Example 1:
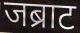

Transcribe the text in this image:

जब्राट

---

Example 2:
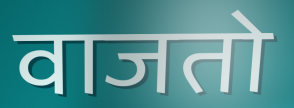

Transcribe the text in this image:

वाजतो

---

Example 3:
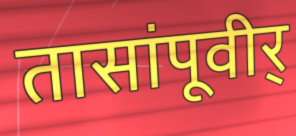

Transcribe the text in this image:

तासांपूवीर्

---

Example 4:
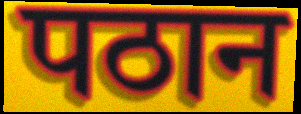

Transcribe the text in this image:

पठान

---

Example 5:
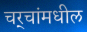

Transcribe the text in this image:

चर्चांमधील